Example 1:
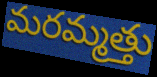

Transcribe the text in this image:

మరమ్మత్తు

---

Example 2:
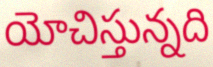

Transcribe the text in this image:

యోచిస్తున్నది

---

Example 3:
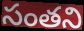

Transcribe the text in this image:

సంతని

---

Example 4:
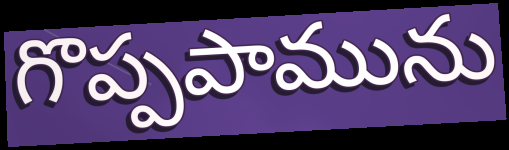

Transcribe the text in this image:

గొప్పపామును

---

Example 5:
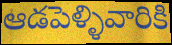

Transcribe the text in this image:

ఆడపెళ్ళివారికి